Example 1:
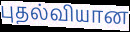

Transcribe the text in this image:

புதல்வியான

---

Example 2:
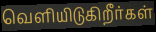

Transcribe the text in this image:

வெளியிடுகிறீர்கள்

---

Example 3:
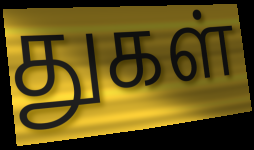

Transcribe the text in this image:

துகள்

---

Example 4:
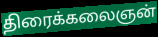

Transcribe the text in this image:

திரைக்கலைஞன்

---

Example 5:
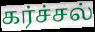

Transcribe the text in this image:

கர்ச்சல்